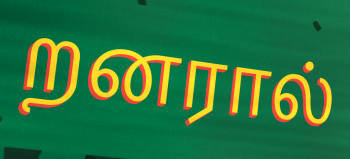
றனரால்